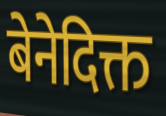
बेनेदिक्त